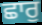
ਛਾਰੁ